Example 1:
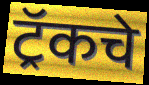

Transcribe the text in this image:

ट्रॅकचे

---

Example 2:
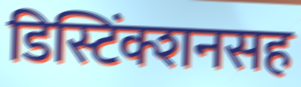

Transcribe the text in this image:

डिस्टिंक्शनसह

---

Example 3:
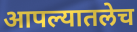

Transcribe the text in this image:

आपल्यातलेच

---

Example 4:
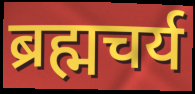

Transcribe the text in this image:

ब्रह्मचर्य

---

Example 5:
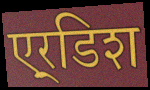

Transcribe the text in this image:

एर्डिश